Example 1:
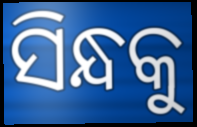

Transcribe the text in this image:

ସିନ୍ଧକୁ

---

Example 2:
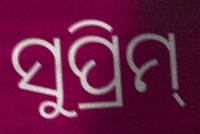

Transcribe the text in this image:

ସୁପ୍ରିମ୍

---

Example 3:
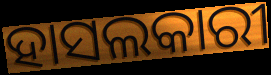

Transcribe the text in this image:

ହାସଲକାରୀ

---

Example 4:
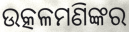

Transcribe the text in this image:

ଉତ୍କଳମଣିଙ୍କର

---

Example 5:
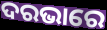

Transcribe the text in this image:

ଦରଭାରେ